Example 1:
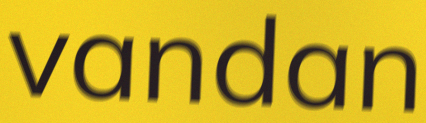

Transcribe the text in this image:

vandan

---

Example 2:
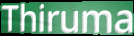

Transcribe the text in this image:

Thiruma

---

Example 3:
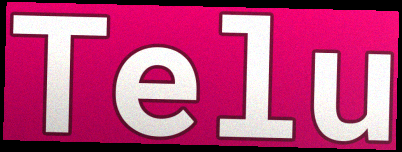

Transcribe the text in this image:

Telu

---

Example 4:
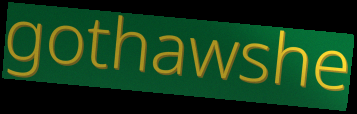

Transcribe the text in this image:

gothawshe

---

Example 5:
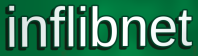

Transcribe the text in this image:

inflibnet